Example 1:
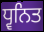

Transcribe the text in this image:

ਧ੍ਵਨਿਤ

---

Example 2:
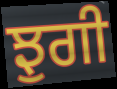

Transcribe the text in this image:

ਝੁਗੀ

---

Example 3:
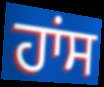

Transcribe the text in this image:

ਹਾਂਸ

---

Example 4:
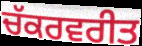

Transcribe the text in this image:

ਚੱਕਰਵਰੀਤ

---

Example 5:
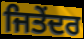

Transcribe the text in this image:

ਜਿਤੇਂਦਰ